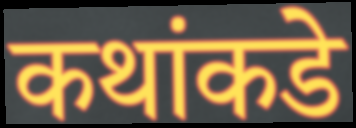
कथांकडे